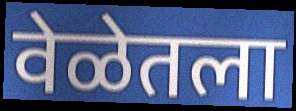
वेळेतला